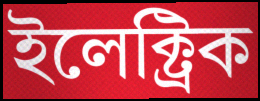
ইলেক্ট্ৰিক